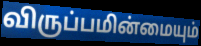
விருப்பமின்மையும்